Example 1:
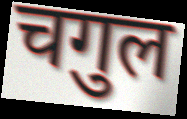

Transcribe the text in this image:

चगुल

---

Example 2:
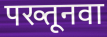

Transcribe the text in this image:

पख्तूनवा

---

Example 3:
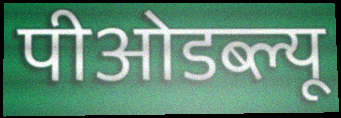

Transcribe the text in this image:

पीओडब्ल्यू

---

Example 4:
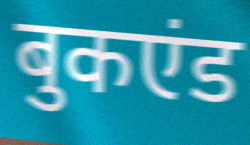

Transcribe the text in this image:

बुकएंड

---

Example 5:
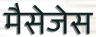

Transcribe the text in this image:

मैसेजेस